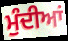
ਮੁੰਦੀਆਂ